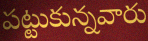
పట్టుకున్నవారు